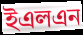
ইএলএন